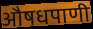
औषधपाणी